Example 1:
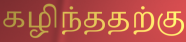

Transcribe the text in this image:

கழிந்ததற்கு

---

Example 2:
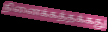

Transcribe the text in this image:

நினைக்கத்தக்கது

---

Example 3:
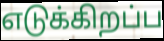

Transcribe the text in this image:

எடுக்கிறப்ப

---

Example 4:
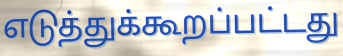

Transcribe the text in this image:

எடுத்துக்கூறப்பட்டது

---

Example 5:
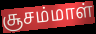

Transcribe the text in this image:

சூசம்மாள்